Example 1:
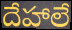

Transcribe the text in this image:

దేహాలే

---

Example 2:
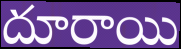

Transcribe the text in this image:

దూరాయి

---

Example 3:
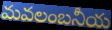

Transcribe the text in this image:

మవలంబనీయ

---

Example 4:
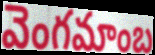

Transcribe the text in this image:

వెంగమాంబ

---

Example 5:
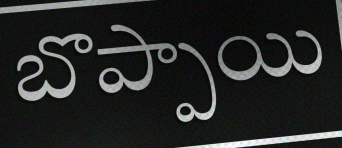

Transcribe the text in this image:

బొప్పాయి